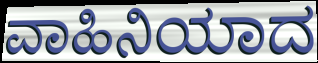
ವಾಹಿನಿಯಾದ